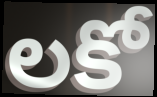
లకో